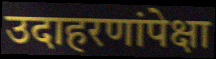
उदाहरणांपेक्षा